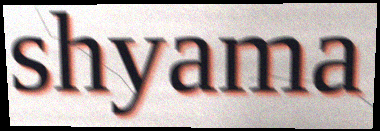
shyama